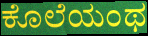
ಕೊಲೆಯಂಥ